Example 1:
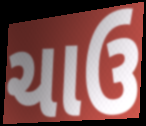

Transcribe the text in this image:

ચાઉ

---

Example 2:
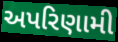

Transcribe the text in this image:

અપરિણામી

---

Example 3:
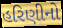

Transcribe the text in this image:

હરિણીનો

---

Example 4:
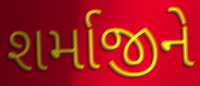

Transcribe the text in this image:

શર્માજીને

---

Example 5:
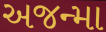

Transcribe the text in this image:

અજન્મા